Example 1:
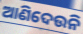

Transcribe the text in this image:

ଆଣିଦେଉନି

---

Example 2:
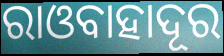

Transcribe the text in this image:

ରାଓବାହାଦୂର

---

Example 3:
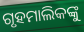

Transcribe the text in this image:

ଗୃହମାଲିକଙ୍କୁ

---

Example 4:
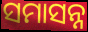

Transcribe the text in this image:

ସମାସନ୍ନ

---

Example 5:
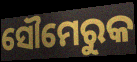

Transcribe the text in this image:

ସୌମେରୁକ